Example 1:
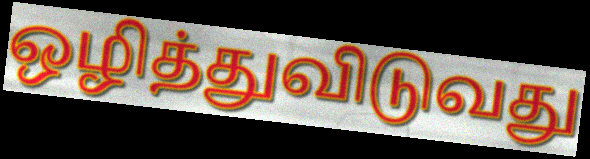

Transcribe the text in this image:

ஒழித்துவிடுவது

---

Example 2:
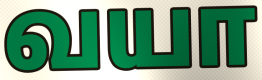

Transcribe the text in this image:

வயா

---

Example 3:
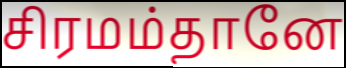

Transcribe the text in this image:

சிரமம்தானே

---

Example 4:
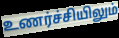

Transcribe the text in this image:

உணர்ச்சியிலும்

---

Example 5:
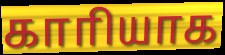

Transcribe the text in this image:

காரியாக